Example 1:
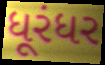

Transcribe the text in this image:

ધૂરંધર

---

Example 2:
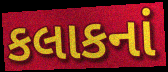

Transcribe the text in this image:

કલાકનાં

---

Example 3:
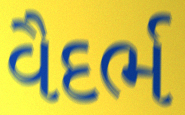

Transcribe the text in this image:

વૈદર્ભ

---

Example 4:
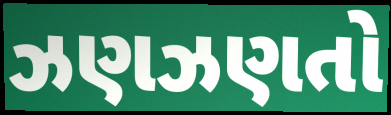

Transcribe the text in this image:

ઝણઝણતો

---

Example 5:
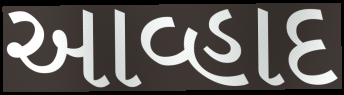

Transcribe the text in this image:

આવ્હાદ